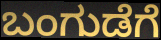
ಬಂಗುಡೆಗೆ